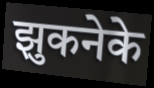
झुकनेके